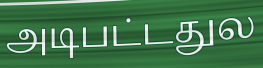
அடிபட்டதுல